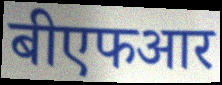
बीएफआर